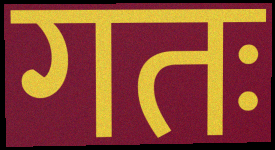
गतः